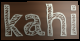
kahi